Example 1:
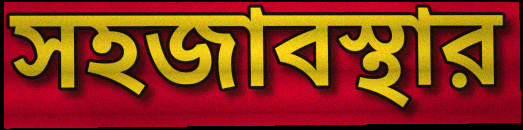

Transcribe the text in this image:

সহজাবস্থার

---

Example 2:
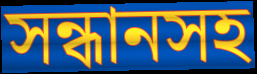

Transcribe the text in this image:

সন্ধানসহ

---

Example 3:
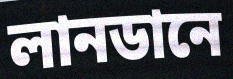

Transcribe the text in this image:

লানডানে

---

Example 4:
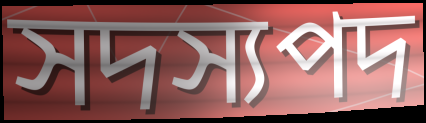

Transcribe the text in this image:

সদস্যপদ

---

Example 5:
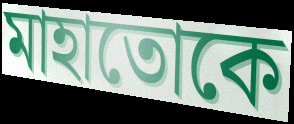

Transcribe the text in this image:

মাহাতোকে